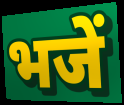
भजें